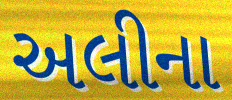
અલીના